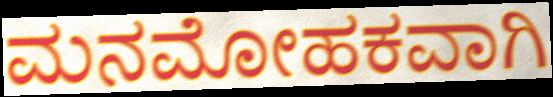
ಮನಮೋಹಕವಾಗಿ